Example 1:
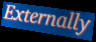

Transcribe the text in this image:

Externally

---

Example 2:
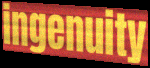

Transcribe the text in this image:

ingenuity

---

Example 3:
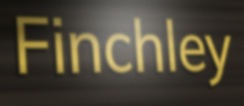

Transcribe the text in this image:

Finchley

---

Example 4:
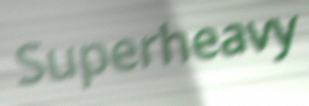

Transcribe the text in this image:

Superheavy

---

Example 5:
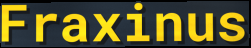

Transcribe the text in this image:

Fraxinus